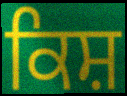
ਕਿਸ਼